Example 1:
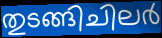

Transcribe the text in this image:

തുടങ്ങിചിലർ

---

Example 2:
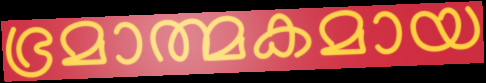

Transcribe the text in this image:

ഭ്രമാത്മകമായ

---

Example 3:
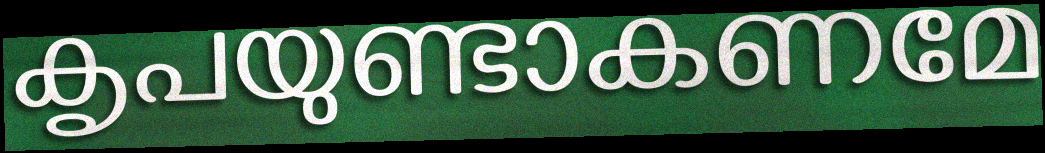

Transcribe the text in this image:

കൃപയുണ്ടാകണമേ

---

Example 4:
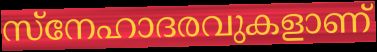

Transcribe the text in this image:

സ്നേഹാദരവുകളാണ്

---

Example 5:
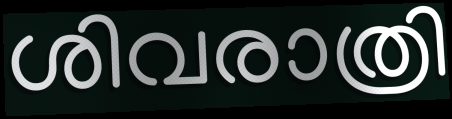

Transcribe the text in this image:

ശിവരാത്രി